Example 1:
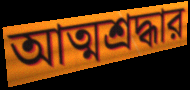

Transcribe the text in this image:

আত্মশ্রদ্ধার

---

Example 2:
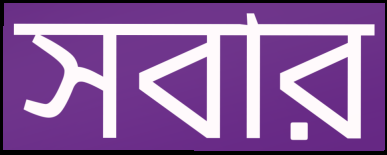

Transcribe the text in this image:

সবার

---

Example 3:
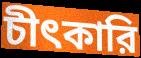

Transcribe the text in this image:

চীৎকারি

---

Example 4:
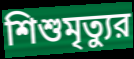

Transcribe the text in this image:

শিশুমৃত্যুর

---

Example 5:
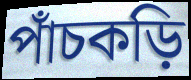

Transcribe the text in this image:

পাঁচকড়ি